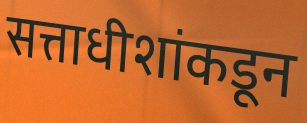
सत्ताधीशांकडून